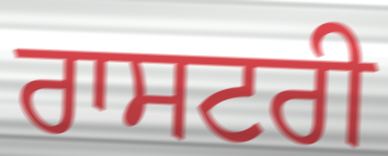
ਰਾਸਟਰੀ